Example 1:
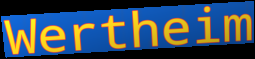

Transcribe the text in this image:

Wertheim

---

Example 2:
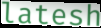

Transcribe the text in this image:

latesh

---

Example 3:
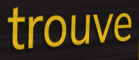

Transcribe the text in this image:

trouve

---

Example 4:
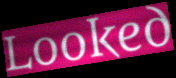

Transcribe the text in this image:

Looked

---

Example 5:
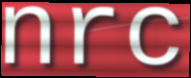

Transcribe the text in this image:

nrc